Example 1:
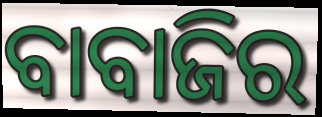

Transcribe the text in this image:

ବାବାଜିର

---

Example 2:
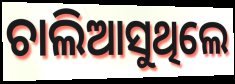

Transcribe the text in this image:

ଚାଲିଆସୁଥିଲେ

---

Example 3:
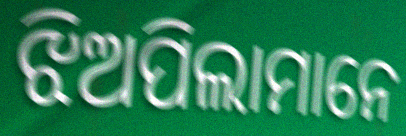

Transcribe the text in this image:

ଝିଅପିଲାମାନେ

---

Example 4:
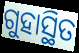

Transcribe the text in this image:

ଗୁହାସ୍ଥିତ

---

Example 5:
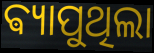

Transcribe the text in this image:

ଵ୍ୟାପୁଥିଲା